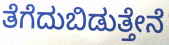
ತೆಗೆದುಬಿಡುತ್ತೇನೆ